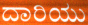
ದಾರಿಯು